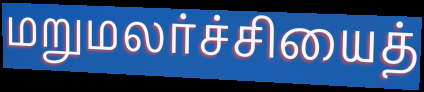
மறுமலர்ச்சியைத்